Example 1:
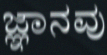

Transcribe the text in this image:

ಜ್ಞಾನವು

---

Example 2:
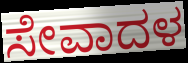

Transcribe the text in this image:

ಸೇವಾದಳ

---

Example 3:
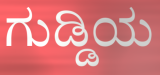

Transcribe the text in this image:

ಗುಡ್ಡಿಯ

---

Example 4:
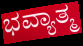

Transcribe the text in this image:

ಭವ್ಯಾತ್ಮ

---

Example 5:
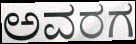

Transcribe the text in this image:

ಅವರಗ